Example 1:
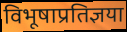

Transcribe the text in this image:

विभूषाप्रतिज्ञया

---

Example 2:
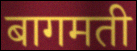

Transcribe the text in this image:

बागमती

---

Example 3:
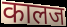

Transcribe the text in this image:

कालज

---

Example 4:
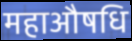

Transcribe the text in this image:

महाऔषधि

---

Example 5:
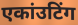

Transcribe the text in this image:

एकांउटिंग